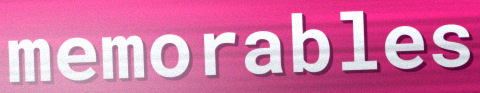
memorables